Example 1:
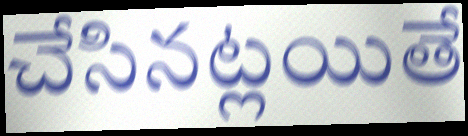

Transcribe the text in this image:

చేసినట్లయితే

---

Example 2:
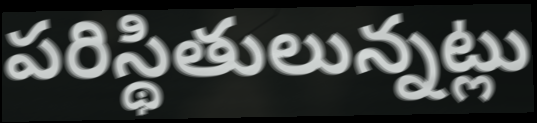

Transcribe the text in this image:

పరిస్థితులున్నట్లు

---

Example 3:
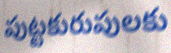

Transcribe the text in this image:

పుట్టకురుపులకు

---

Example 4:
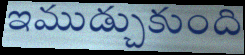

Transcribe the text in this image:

ఇముడ్చుకుంది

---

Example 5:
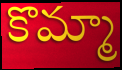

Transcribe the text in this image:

కొమ్మా